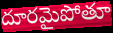
దూరమైపోతూ